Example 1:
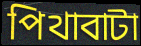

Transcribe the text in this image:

পিথাবাটা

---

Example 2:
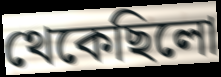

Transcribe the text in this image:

থেকেছিলো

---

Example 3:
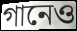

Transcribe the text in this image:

গানেও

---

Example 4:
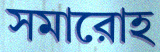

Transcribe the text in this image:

সমারোহ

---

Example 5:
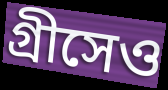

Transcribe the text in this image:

গ্রীসেও